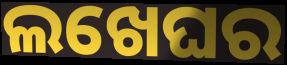
ଲଖେଘର